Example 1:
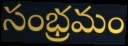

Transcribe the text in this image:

సంభ్రమం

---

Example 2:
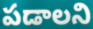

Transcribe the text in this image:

పడాలని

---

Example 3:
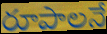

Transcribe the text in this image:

రూపాలనే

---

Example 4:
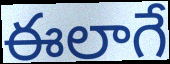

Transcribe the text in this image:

ఈలాగే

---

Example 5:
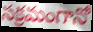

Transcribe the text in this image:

సక్రమంగానో